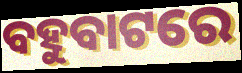
ବହୁବାଟରେ